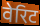
वेरिट